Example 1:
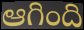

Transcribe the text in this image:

ఆగింది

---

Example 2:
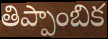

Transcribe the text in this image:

తిప్పాంబిక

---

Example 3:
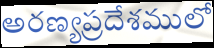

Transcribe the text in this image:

అరణ్యప్రదేశములో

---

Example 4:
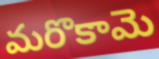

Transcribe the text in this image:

మరొకామె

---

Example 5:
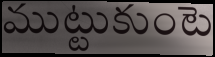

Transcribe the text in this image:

ముట్టుకుంటె